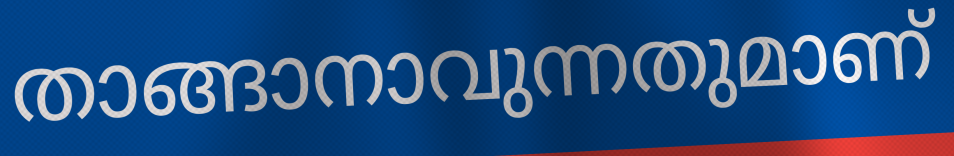
താങ്ങാനാവുന്നതുമാണ്